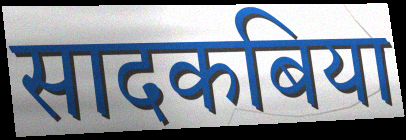
सादकबिया